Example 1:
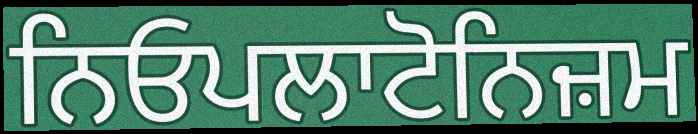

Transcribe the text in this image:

ਨਿਓਪਲਾਟੋਨਿਜ਼ਮ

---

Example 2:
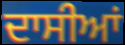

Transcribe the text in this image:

ਦਾਸੀਆਂ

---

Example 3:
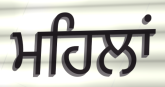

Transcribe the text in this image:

ਮਹਿਲਾਂ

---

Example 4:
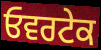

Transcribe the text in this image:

ਓਵਰਟੇਕ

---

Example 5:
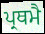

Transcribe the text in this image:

ਪ੍ਰਥਮੈ